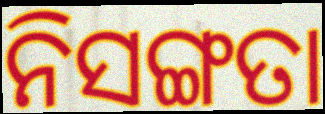
ନିସଙ୍ଗତା